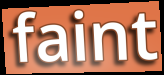
faint